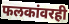
फलकांवरही